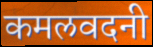
कमलवदनी